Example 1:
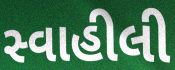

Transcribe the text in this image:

સ્વાહીલી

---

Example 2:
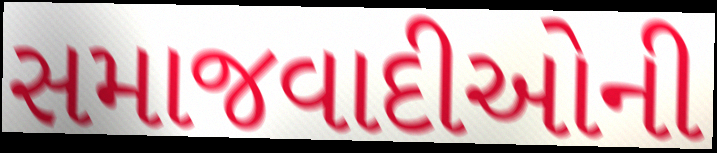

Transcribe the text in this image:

સમાજવાદીઓની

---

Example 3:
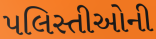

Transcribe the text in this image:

પલિસ્તીઓની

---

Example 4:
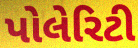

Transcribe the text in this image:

પોલેરિટી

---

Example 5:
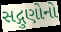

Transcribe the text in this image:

સદ્ગુણોનો